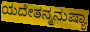
ಯದೇತನ್ಮನುಷ್ಯಾ